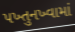
પખ્તુનખ્વામાં